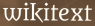
wikitext